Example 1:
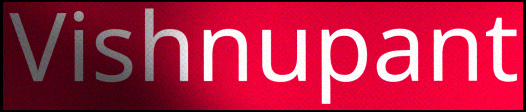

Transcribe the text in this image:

Vishnupant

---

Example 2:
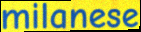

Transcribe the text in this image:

milanese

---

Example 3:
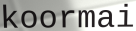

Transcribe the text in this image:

koormai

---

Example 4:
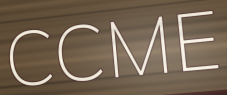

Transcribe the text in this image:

CCME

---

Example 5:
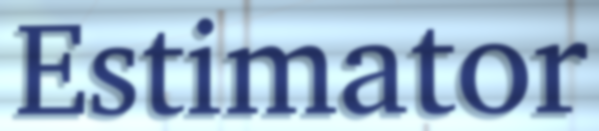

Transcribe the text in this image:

Estimator